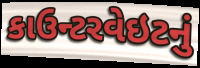
કાઉન્ટરવેઇટનું